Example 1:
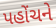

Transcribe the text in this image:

પહોંચને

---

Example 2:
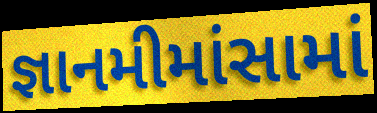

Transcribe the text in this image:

જ્ઞાનમીમાંસામાં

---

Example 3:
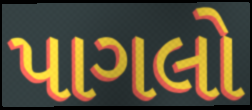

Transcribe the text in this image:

પાગલો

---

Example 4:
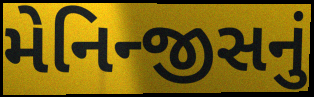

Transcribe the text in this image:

મેનિન્જીસનું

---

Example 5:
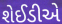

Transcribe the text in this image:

શેઈડીએ